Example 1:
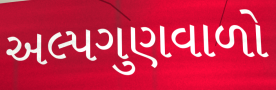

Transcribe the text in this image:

અલ્પગુણવાળો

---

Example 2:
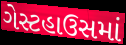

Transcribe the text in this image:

ગેસ્ટહાઉસમાં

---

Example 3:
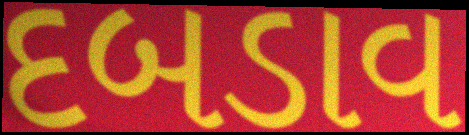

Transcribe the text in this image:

દબડાવ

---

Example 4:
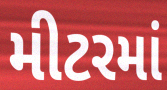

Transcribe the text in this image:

મીટરમાં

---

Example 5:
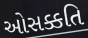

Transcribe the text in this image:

ઓસક્કતિ